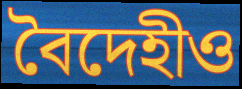
বৈদেহীও